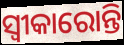
ସ୍ଵୀକାରୋନ୍ତି